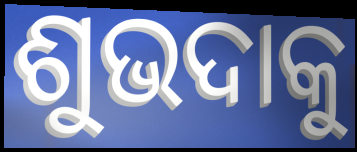
ଶୁଭଦାକୁ